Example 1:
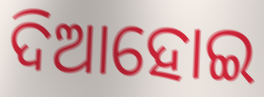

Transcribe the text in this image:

ଦିଆହୋଇ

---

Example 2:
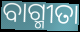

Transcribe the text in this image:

ବାଗ୍ମୀତା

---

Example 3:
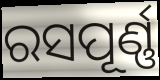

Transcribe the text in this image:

ରସପୂର୍ଣ୍ଣ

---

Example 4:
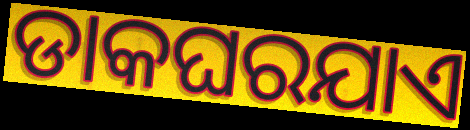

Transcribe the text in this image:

ଡାକଘରଯାଏ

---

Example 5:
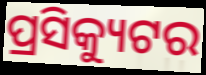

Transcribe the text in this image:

ପ୍ରସିକ୍ୟୁଟର